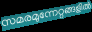
സമരമുന്നേറ്റങ്ങളിൽ